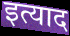
इत्याद